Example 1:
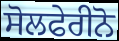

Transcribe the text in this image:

ਸੋਲਫੇਰੀਨੋ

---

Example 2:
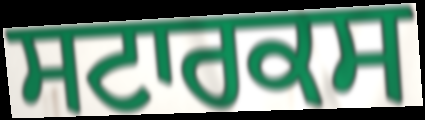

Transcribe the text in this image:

ਸਟਾਰਕਸ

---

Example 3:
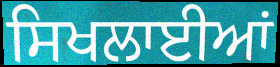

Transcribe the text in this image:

ਸਿਖਲਾਈਆਂ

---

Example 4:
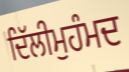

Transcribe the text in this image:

ਦਿੱਲੀਮੁਹੰਮਦ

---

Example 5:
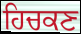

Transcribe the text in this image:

ਹਿਚਕਣ